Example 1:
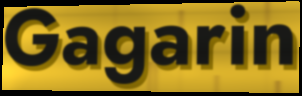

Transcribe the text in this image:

Gagarin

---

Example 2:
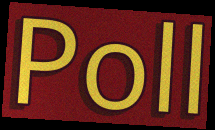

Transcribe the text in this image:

Poll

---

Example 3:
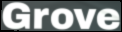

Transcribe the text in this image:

Grove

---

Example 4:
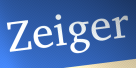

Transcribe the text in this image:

Zeiger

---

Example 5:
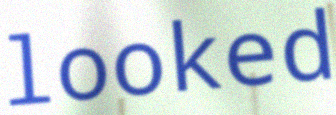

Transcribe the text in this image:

looked